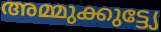
അമ്മുക്കുട്ട്യേ